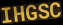
IHGSC